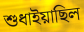
শুধাইয়াছিল